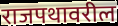
राजपथावरील